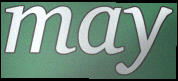
may